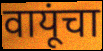
वायूंचा